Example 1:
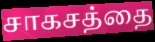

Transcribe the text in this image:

சாகசத்தை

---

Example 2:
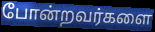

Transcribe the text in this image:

போன்றவர்களை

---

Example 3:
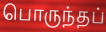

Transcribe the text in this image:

பொருந்தப்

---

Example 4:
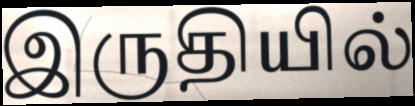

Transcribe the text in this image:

இருதியில்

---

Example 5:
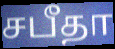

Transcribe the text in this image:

சபீதா